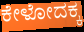
ಕೇಳೋದಕ್ಕ